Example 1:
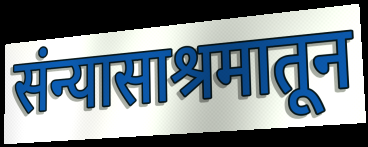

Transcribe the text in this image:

संन्यासाश्रमातून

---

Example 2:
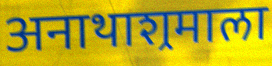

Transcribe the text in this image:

अनाथाश्रमाला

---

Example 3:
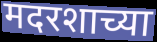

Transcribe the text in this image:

मदरशाच्या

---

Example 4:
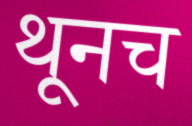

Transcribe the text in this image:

थूनच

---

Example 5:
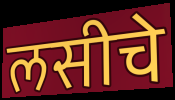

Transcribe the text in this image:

लसीचे